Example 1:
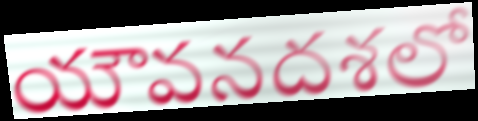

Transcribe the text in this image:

యౌవనదశలో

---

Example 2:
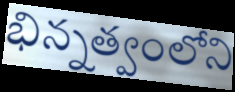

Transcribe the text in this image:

భిన్నత్వంలోని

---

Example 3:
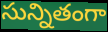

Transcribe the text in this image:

సున్నితంగా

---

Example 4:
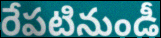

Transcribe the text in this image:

రేపటినుండీ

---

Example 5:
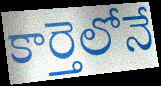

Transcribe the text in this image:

కార్తెలోనే